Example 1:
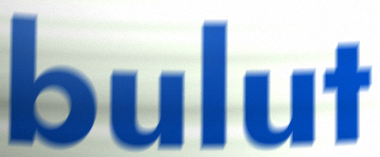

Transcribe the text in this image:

bulut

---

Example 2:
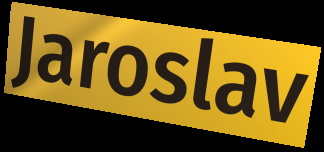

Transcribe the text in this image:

Jaroslav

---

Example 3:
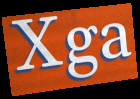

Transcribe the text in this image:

Xga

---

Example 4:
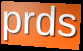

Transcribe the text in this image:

prds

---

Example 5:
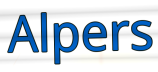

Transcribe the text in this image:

Alpers